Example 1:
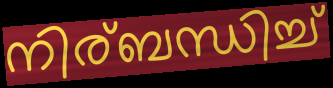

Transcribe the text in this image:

നിര്ബന്ധിച്ച്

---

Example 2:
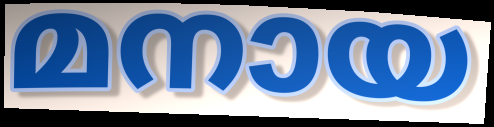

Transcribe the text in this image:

മനായ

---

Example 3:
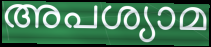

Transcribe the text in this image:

അപശ്യാമ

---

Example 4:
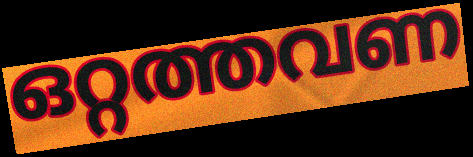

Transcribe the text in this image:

ഒറ്റത്തവണ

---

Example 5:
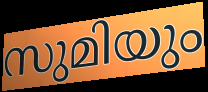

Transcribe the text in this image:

സുമിയും